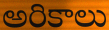
అరికాలు